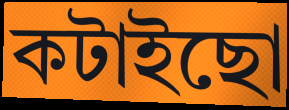
কটাইছো